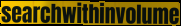
searchwithinvolume